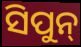
ସିପୁନ୍